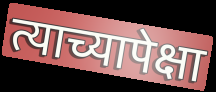
त्याच्यापेक्षा